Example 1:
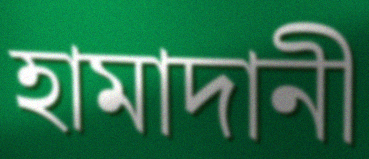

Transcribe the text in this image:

হামাদানী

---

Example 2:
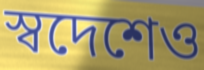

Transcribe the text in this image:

স্বদেশেও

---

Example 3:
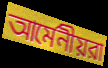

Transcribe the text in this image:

আর্মেনীয়রা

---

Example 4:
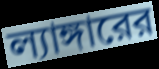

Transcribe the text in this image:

ল্যাঙ্গারের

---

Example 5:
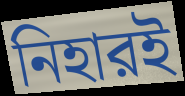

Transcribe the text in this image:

নিহারই